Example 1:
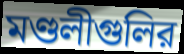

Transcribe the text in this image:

মণ্ডলীগুলির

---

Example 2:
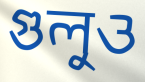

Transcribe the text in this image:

গুলুও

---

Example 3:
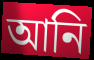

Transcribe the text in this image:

আনি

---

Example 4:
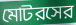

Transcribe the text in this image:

মোটরসের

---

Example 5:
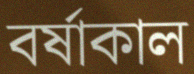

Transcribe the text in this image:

বর্ষাকাল